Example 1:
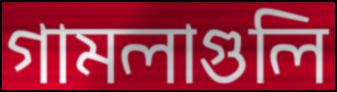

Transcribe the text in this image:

গামলাগুলি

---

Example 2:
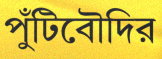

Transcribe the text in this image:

পুঁটিবৌদির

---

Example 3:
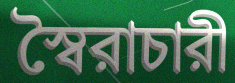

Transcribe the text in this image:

স্বৈরাচারী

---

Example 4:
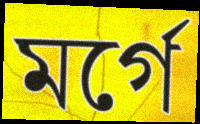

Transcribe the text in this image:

মর্গে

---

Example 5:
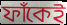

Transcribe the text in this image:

ফাঁকেই